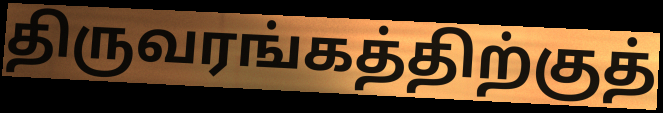
திருவரங்கத்திற்குத்